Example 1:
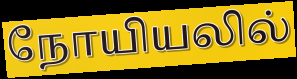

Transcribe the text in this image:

நோயியலில்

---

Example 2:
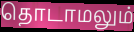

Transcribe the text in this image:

தொடாமலும்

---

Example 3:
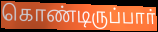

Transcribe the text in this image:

கொண்டிருப்பார்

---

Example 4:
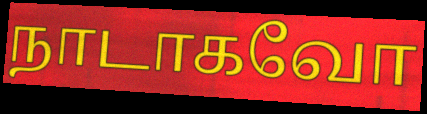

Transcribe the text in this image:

நாடாகவோ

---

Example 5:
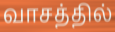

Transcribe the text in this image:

வாசத்தில்